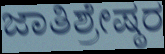
ಜಾತಿಶ್ರೇಷ್ಠರ